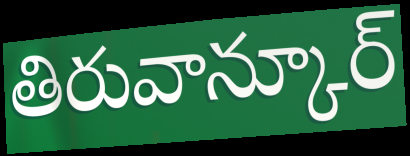
తిరువాన్కూర్